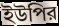
ইউপির